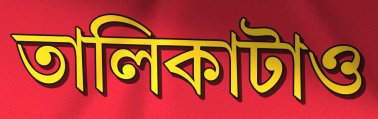
তালিকাটাও